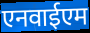
एनवाईएम